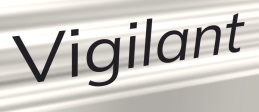
Vigilant